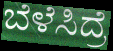
ಬೆಳೆಸಿದ್ರೆ